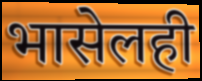
भासेलही